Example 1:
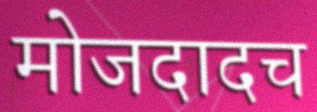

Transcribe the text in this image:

मोजदादच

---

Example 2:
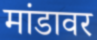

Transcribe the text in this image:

मांडावर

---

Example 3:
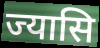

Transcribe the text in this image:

ज्यासि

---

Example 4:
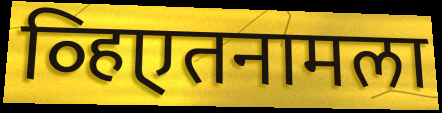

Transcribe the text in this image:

व्हिएतनामला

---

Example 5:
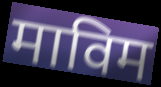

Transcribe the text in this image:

माविम